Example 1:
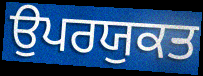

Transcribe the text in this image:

ਉਪਰਯੁਕਤ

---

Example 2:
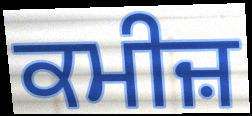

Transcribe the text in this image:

ਕਮੀਜ਼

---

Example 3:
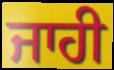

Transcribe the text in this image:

ਜਾਹੀ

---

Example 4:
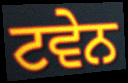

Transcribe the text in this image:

ਟਵੇਨ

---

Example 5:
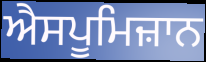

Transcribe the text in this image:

ਐਸਪੂਮਿਜ਼ਾਨ